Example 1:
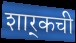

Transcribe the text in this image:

शार्कची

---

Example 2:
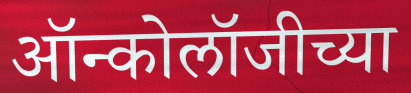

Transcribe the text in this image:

ऑन्कोलॉजीच्या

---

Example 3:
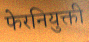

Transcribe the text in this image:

फेरनियुक्ती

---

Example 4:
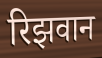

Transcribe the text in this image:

रिझवान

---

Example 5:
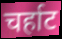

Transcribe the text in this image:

चर्हाट